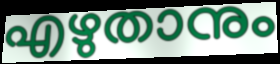
എഴുതാനും